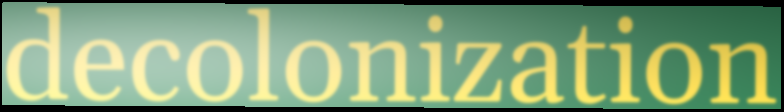
decolonization